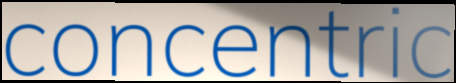
concentric